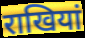
राखियां